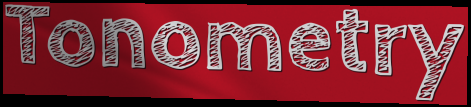
Tonometry